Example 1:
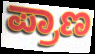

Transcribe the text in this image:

ಪ್ರಾಣ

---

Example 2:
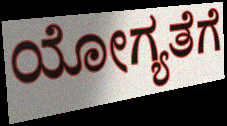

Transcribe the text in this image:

ಯೋಗ್ಯತೆಗೆ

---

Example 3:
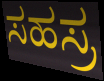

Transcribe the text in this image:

ಸಹಸ್ರ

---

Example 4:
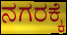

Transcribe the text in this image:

ನಗರಕ್ಕೆ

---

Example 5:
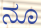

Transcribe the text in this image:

ನೂ